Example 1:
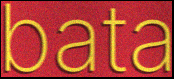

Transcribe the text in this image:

bata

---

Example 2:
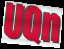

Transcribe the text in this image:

UQn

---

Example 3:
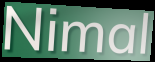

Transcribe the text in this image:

Nimal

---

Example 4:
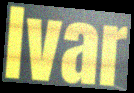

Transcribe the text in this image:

Ivar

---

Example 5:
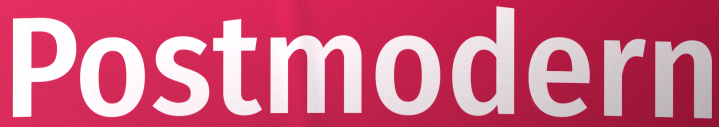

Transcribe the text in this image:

Postmodern